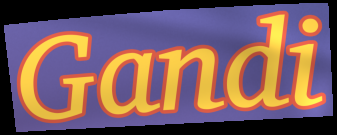
Gandi